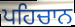
ਪਹਿਚਾਨ